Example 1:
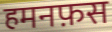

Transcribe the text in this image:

हमनफ़स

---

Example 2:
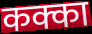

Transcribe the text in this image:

कक्का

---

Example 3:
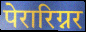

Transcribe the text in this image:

पेरारिग्नर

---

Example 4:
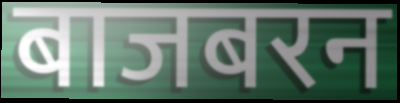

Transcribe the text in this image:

बाजबरन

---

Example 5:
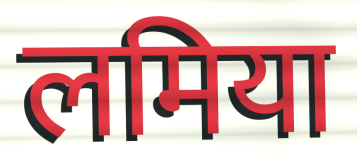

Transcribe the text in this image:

लमिया